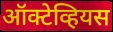
ऑक्टेव्हियस